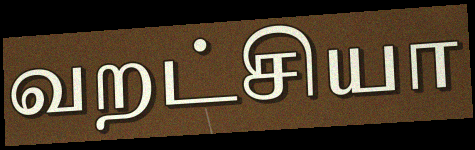
வறட்சியா